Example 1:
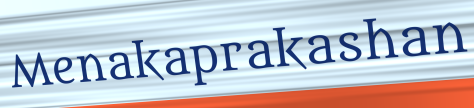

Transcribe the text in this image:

Menakaprakashan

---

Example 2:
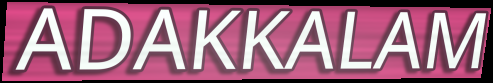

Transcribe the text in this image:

ADAKKALAM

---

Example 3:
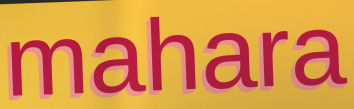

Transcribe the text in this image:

mahara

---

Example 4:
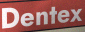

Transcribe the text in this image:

Dentex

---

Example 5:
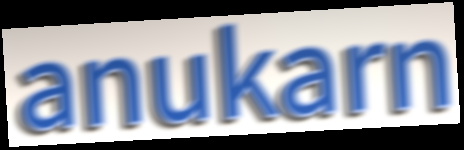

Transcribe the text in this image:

anukarn